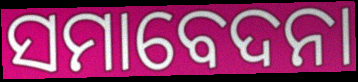
ସମାବେଦନା